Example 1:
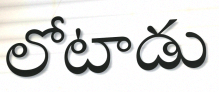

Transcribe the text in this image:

లోటాడు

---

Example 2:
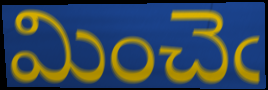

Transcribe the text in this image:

మించెఁ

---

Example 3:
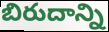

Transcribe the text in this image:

బిరుదాన్ని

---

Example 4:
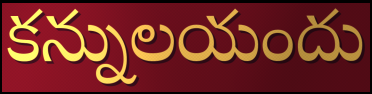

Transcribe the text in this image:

కన్నులయందు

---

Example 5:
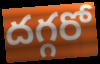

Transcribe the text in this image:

దగ్గరో